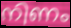
നിണം